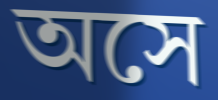
অসে